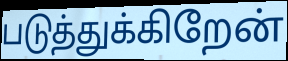
படுத்துக்கிறேன்